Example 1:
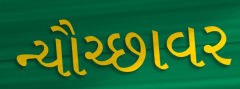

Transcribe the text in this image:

ન્યૌચ્છાવર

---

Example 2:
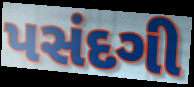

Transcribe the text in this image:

પસંદગી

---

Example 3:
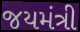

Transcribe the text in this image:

જયમંત્રી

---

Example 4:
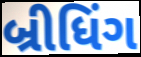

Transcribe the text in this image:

બ્રીધિંગ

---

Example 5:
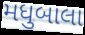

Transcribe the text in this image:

મધુબાલા